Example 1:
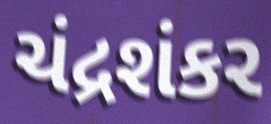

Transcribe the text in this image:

ચંદ્રશંકર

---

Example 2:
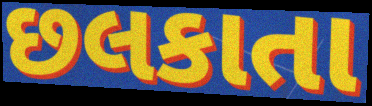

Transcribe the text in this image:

છલકાતા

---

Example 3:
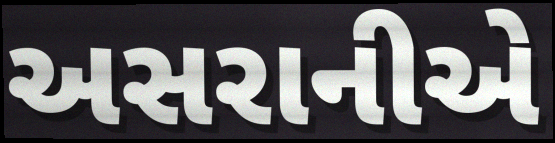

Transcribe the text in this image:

અસરાનીએ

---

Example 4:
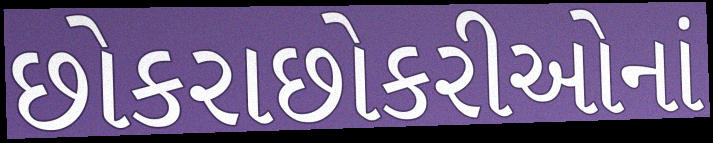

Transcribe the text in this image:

છોકરાછોકરીઓનાં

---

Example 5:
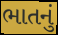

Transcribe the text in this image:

ભાતનું